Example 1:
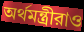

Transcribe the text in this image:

অর্থমন্ত্রীরাও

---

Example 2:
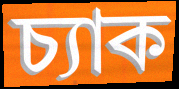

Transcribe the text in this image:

চ্যাক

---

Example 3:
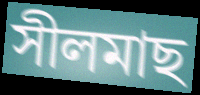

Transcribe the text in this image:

সীলমাছ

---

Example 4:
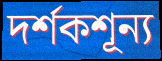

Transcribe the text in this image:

দর্শকশূন্য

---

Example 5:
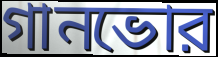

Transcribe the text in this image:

গানভোর